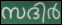
സദിർ